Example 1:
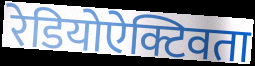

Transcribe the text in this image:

रेडियोऐक्टिवता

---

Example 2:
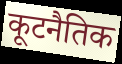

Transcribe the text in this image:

कूटनैतिक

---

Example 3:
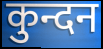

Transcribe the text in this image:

कुन्दन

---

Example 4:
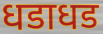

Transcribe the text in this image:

धडाधड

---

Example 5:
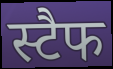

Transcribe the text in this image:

स्टैफ